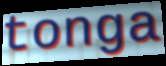
tonga